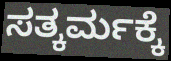
ಸತ್ಕರ್ಮಕ್ಕೆ